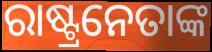
ରାଷ୍ଟ୍ରନେତାଙ୍କ